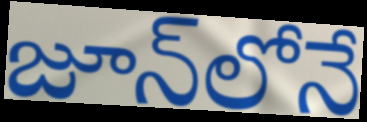
జూన్‌లోనే